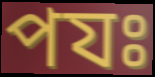
পযঃ